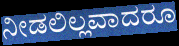
ನೀಡಲಿಲ್ಲವಾದರೂ